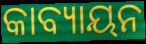
କାବ୍ୟାୟନ